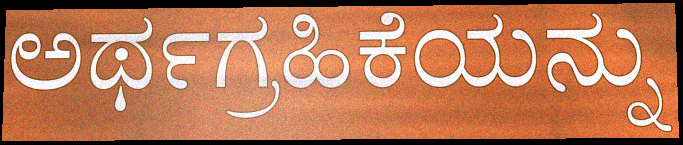
ಅರ್ಥಗ್ರಹಿಕೆಯನ್ನು